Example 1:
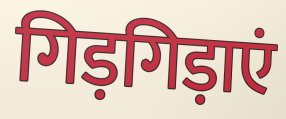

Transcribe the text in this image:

गिड़गिड़ाएं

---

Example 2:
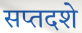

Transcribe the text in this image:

सप्तदशे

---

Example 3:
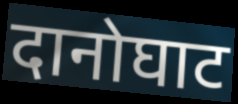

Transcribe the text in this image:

दानोघाट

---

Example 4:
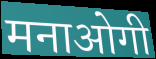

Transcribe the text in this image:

मनाओगी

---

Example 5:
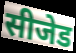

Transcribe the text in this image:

सीजेड